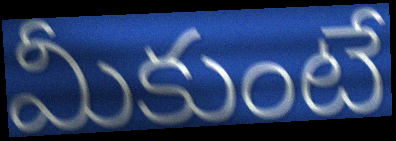
మీకుంటే